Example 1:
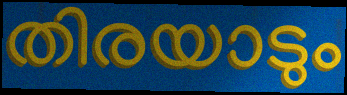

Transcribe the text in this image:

തിരയാടും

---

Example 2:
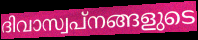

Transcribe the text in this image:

ദിവാസ്വപ്നങ്ങളുടെ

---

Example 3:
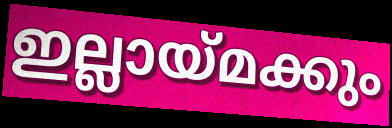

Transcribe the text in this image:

ഇല്ലായ്മക്കും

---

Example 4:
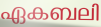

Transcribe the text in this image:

ഏകബലി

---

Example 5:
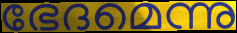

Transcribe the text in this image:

ഭേദമെന്നു